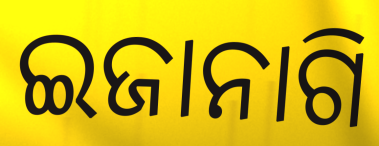
ଇଜାନାଗି